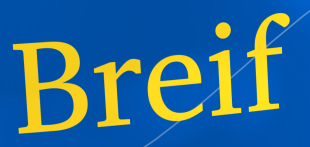
Breif